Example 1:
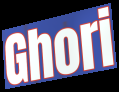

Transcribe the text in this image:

Ghori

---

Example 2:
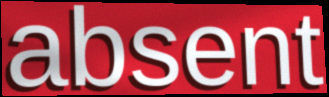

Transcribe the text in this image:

absent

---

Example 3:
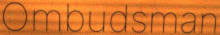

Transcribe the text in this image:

Ombudsman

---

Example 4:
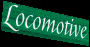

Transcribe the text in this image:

Locomotive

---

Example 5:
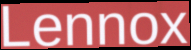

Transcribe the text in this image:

Lennox